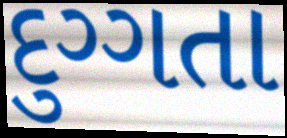
દુગ્ગતા